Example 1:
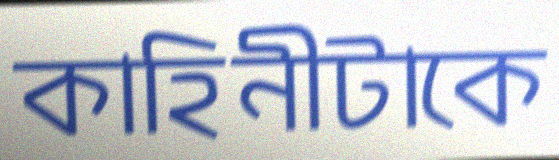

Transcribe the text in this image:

কাহিনীটাকে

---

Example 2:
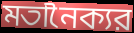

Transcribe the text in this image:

মতানৈক্যর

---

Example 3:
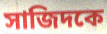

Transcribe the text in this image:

সাজিদকে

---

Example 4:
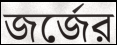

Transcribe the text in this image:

জর্জের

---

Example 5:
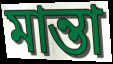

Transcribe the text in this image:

মান্তা